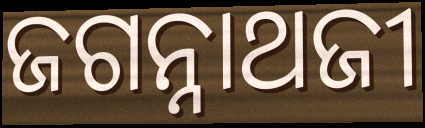
ଜଗନ୍ନାଥଜୀ